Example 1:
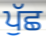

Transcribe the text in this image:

ਪੁੱਛ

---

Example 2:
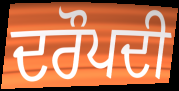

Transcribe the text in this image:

ਦਰੌਪਦੀ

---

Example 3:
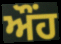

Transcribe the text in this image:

ਔਂਹ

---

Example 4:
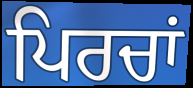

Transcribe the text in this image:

ਪਿਰਚਾਂ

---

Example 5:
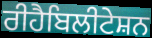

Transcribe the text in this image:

ਰੀਹੈਬਿਲੀਟੇਸ਼ਨ